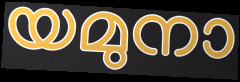
യമുനാ